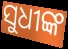
ସୁଧୀଙ୍କ